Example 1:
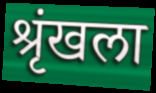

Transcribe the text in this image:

श्रृंखला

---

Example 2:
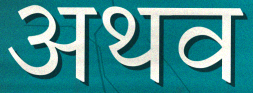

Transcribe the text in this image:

अथव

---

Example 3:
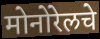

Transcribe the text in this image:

मोनोरेलचे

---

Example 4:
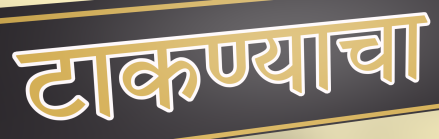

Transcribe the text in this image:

टाकण्याचा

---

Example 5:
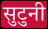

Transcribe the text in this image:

सुटुनी